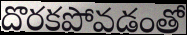
దొరకపోవడంతో